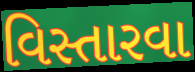
વિસ્તારવા